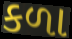
કળા